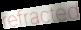
refracted